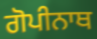
ਗੋਪੀਨਾਥ